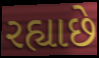
રહ્યાછે